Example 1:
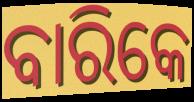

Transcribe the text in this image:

ବାରିକେ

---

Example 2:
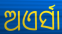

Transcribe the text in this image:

ଅଏର୍ସା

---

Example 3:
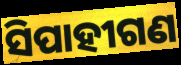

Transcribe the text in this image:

ସିପାହୀଗଣ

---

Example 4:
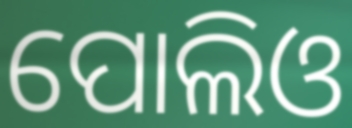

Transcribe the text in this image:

ପୋଲିଓ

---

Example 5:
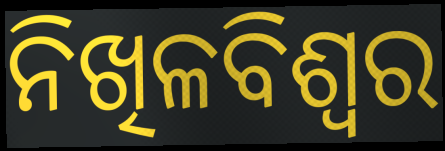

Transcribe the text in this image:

ନିଖିଳବିଶ୍ୱର